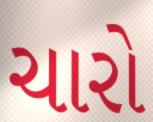
ચારો